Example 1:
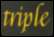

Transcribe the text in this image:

triple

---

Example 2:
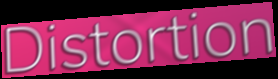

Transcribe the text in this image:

Distortion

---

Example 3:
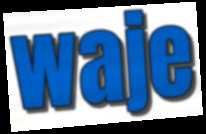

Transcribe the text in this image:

waje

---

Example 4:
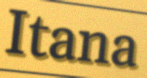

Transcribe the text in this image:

Itana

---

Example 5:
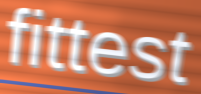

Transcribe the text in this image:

fittest